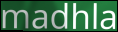
madhla